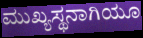
ಮುಖ್ಯಸ್ಥನಾಗಿಯೂ